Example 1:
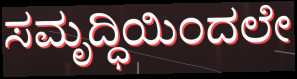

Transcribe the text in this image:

ಸಮೃದ್ಧಿಯಿಂದಲೇ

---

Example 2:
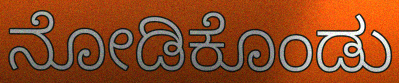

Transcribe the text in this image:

ನೋಡಿಕೊಂಡು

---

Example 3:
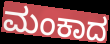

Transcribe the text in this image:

ಮಂಕಾದ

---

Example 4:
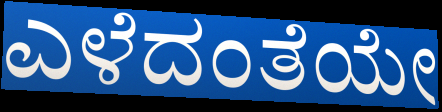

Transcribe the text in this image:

ಎಳೆದಂತೆಯೇ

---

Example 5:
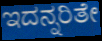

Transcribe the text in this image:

ಇದನ್ನರಿತೇ